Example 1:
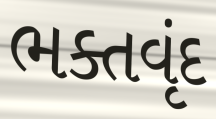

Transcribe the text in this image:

ભક્તવૃંદ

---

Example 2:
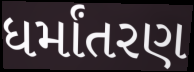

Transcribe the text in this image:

ધર્માંતરણ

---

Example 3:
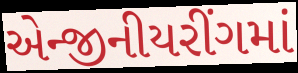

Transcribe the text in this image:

એન્જીનીયરીંગમાં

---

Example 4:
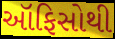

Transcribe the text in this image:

ઑફિસોથી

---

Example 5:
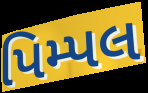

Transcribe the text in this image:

પિમ્પલ